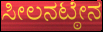
ಸೀಲನಟ್ಠೇನ